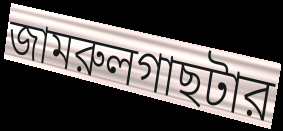
জামরুলগাছটার